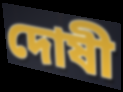
দোষী